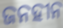
ଜନହୀନ